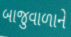
બાજુવાળાને